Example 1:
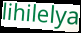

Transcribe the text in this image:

lihilelya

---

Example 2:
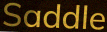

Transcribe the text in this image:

Saddle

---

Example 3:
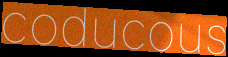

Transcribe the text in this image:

coducous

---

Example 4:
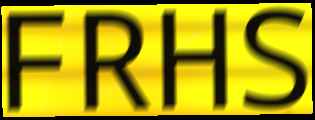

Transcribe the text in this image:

FRHS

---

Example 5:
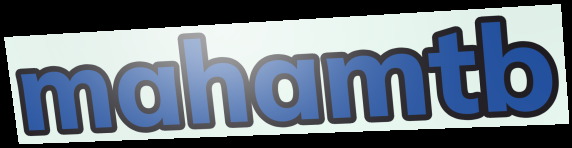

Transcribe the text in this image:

mahamtb